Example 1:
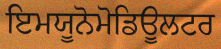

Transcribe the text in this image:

ਇਮਯੂਨੋਮੋਡਿਊਲਟਰ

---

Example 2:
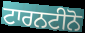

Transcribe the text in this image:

ਟਾਰਨਟੀਨੋ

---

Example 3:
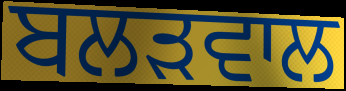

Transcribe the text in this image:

ਬਲੜਵਾਲ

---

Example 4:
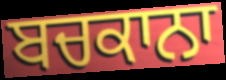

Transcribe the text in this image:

ਬਚਕਾਨਾ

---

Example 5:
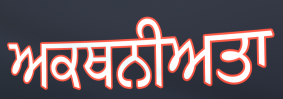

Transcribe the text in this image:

ਅਕਥਨੀਅਤਾ